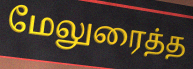
மேலுரைத்த